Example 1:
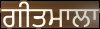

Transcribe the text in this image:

ਗੀਤਮਾਲਾ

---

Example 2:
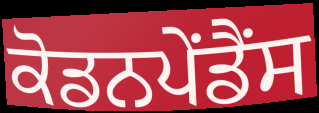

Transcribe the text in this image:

ਕੋਡਨਪੇਂਡੈਂਸ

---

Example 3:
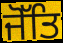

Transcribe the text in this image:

ਜੋੱਤਿ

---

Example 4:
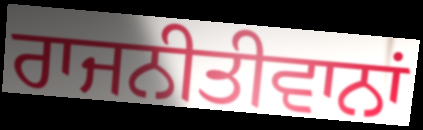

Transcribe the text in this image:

ਰਾਜਨੀਤੀਵਾਨਾਂ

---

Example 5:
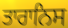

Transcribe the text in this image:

ਤਾਰਾਨਿਸ